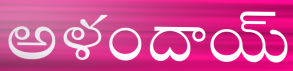
అళందాయ్